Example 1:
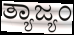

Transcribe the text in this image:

ತ್ಯಾಜ್ಯಂ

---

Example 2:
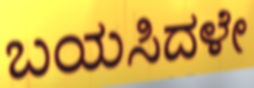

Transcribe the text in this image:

ಬಯಸಿದಳೇ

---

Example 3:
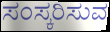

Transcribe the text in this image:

ಸಂಸ್ಕರಿಸುವ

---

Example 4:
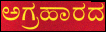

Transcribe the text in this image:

ಅಗ್ರಹಾರದ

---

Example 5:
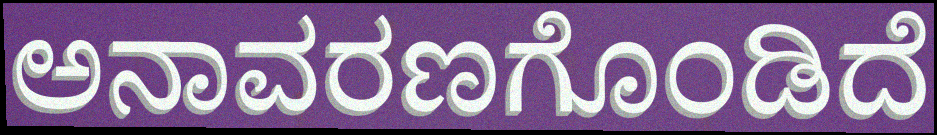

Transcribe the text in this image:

ಅನಾವರಣಗೊಂಡಿದೆ